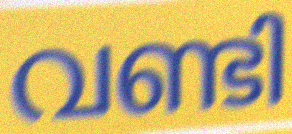
വണ്ടി